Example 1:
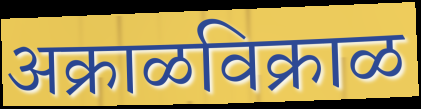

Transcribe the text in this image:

अक्राळविक्राळ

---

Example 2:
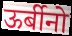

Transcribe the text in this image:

ऊर्बीनो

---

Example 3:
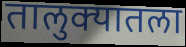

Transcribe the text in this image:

तालुक्यातला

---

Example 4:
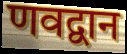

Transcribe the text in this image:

णवद्वान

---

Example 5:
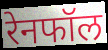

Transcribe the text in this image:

रेनफॉल